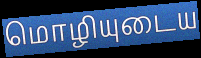
மொழியுடைய